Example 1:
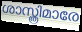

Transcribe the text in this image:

ശാസ്ത്രിമാരേ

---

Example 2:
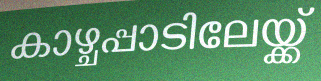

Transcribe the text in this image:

കാഴ്ചപ്പാടിലേയ്ക്ക്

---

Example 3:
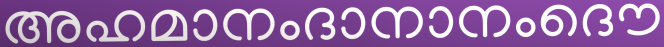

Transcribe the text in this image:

അഹമാനംദാനാനംദൌ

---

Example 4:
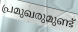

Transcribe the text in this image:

പ്രമുഖരുമുണ്ട്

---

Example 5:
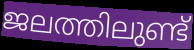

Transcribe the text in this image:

ജലത്തിലുണ്ട്